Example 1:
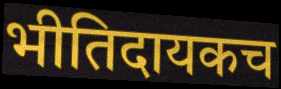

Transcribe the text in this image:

भीतिदायकच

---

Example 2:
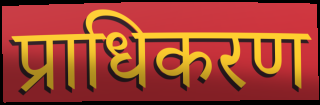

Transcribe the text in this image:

प्राधिकरण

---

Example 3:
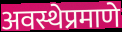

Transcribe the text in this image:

अवस्थेप्रमाणे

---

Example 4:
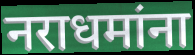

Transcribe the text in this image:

नराधमांना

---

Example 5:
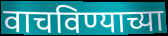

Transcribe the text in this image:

वाचविण्याच्या